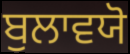
ਬੁਲਾਵਯੋ